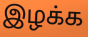
இழக்க